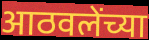
आठवलेंच्या